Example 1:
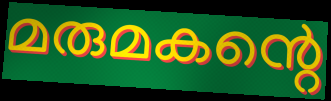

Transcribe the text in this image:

മരുമകന്റെ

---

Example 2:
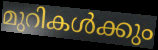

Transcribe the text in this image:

മുറികൾക്കും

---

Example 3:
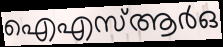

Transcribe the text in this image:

ഐഎസ്ആർഒ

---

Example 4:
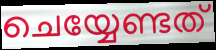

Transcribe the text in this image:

ചെയ്യേണ്ടത്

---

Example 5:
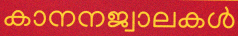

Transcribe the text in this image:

കാനനജ്വാലകൾ